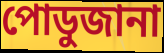
পোডুজানা